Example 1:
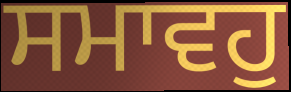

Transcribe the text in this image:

ਸਮਾਵਹੁ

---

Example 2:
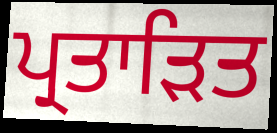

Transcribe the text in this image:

ਪ੍ਰਤਾੜਿਤ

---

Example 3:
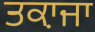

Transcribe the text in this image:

ਤਕ਼ਾਜਾ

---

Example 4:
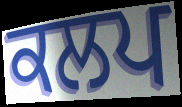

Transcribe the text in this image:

ਕਲਪ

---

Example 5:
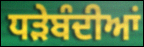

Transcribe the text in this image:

ਧੜੇਬੰਦੀਆਂ